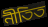
নীতিত